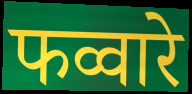
फव्वारे